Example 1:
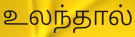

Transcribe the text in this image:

உலந்தால்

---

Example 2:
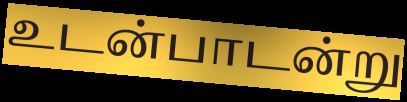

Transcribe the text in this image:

உடன்பாடன்று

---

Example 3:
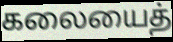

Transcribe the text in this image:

கலையைத்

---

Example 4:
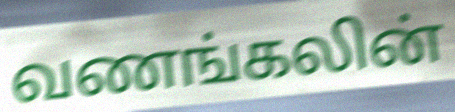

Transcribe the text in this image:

வணங்கலின்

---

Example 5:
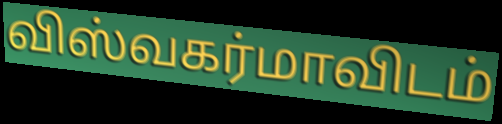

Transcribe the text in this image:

விஸ்வகர்மாவிடம்